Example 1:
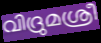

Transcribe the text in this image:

വിദ്രുമശ്രീ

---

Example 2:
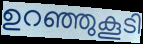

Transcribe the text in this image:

ഉറഞ്ഞുകൂടി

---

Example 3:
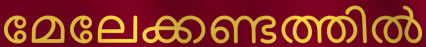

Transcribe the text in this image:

മേലേക്കണ്ടത്തിൽ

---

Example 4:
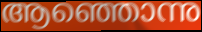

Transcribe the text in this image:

ആഞ്ഞൊന്നു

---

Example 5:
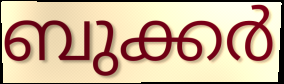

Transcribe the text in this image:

ബുക്കർ